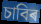
চাবিৰ